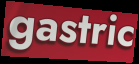
gastric